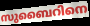
സുബൈറിനെ